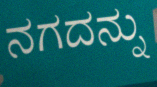
ನಗದನ್ನು